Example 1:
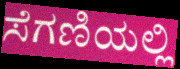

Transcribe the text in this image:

ಸೆಗಣಿಯಲ್ಲಿ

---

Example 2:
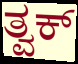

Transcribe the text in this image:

ತ್ವಕ್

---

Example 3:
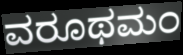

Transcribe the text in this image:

ವರೂಥಮಂ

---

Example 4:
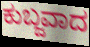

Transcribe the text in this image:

ಕುಬ್ಜವಾದ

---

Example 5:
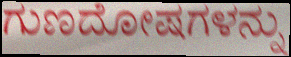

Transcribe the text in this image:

ಗುಣದೋಷಗಳನ್ನು